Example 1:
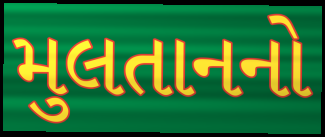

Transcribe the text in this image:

મુલતાનનો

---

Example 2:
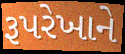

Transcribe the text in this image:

રૂપરેખાને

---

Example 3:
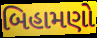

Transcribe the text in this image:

બિહામણો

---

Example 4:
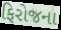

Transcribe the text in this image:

ફિરોજના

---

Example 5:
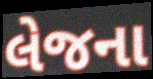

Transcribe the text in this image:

લેજના